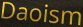
Daoism